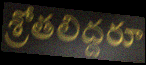
శ్రోతలిద్దరూ